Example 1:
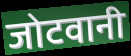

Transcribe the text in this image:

जोटवानी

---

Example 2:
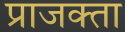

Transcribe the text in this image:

प्राजक्ता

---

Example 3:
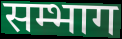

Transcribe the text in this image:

सम्भाग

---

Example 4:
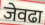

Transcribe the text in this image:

जेवढा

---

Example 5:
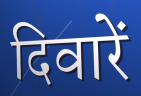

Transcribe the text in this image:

दिवारें